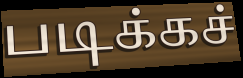
படிக்கச்